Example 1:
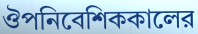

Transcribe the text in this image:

ঔপনিবেশিককালের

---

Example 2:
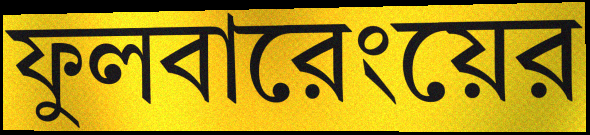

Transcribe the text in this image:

ফুলবারেংয়ের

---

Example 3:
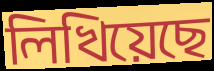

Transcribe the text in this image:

লিখিয়েছে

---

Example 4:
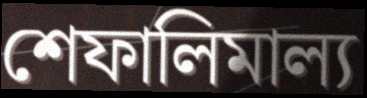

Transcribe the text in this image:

শেফালিমাল্য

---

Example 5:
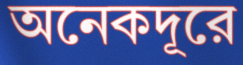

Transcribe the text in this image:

অনেকদূরে